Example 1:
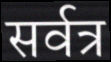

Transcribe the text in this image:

सर्वत्र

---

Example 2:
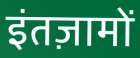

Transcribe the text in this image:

इंतज़ामों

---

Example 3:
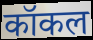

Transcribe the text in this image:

कॉकल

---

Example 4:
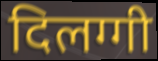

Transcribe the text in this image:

दिलग्गी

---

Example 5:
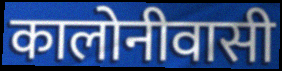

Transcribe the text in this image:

कालोनीवासी